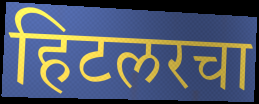
हिटलरचा